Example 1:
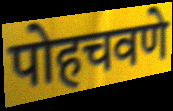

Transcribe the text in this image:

पोहचवणे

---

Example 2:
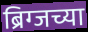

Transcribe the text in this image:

ब्रिग्जच्या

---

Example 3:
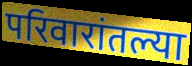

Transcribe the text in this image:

परिवारांतल्या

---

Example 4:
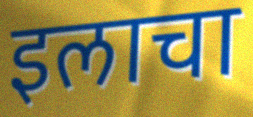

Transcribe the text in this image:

इलाचा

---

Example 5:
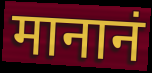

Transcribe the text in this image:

मानानं